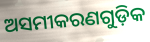
ଅସମୀକରଣଗୁଡ଼ିକ